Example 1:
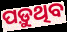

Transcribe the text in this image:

ପଡ଼ୁଥିବ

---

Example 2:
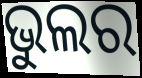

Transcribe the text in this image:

ଭୁଲର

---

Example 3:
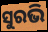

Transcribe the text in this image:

ସୁରଭି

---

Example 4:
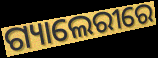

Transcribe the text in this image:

ଗ୍ୟାଲେରୀରେ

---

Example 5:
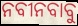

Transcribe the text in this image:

ନବୀନବାବୁ